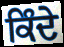
ਕਿੰਦੇ